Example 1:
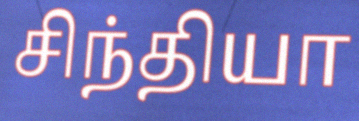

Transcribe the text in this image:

சிந்தியா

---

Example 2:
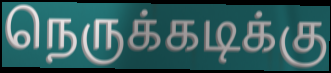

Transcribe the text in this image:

நெருக்கடிக்கு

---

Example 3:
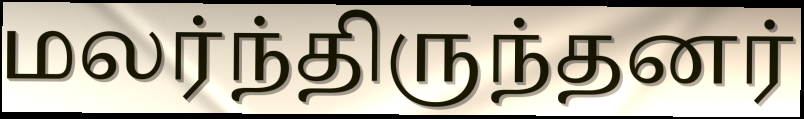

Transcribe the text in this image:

மலர்ந்திருந்தனர்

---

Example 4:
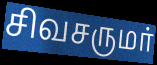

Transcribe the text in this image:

சிவசருமர்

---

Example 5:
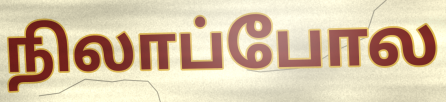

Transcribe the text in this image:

நிலாப்போல